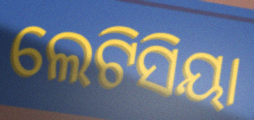
ଲେଟିସିୟା